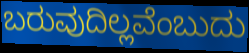
ಬರುವುದಿಲ್ಲವೆಂಬುದು